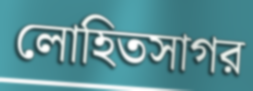
লোহিতসাগর